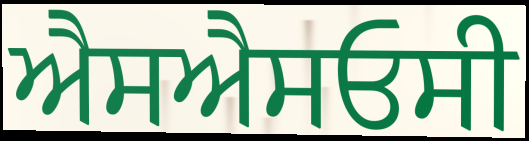
ਐਸਐਸਓਸੀ